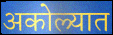
अकोल्यात